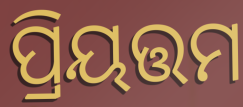
ପ୍ରିୟତ୍ତମ